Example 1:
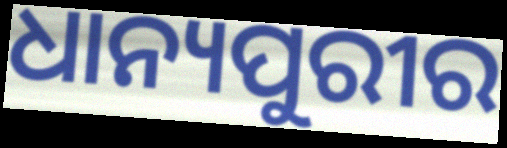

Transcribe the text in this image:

ଧାନ୍ୟପୁରୀର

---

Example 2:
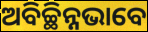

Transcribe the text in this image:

ଅବିଚ୍ଛିନ୍ନଭାବେ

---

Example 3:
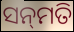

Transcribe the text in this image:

ସନ୍‌ମତି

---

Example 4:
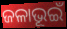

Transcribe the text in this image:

ଜଳାଭୂଇଁ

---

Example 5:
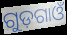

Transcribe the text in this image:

ଗୁଡ଼ଗାଓଁ